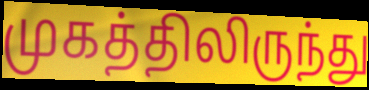
முகத்திலிருந்து